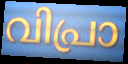
വിപ്രാ